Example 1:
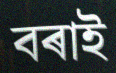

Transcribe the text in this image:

বৰাই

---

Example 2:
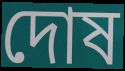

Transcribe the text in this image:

দোষ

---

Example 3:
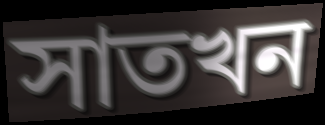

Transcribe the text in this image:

সাতখন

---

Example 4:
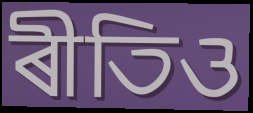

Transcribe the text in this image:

ৰীতিও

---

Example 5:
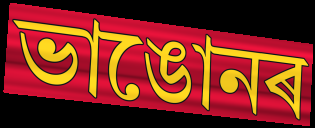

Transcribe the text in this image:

ভাঙোনৰ